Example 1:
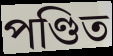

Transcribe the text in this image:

পণ্ডিত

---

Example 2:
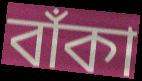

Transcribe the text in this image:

বাঁকা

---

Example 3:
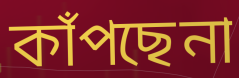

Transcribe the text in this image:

কাঁপছেনা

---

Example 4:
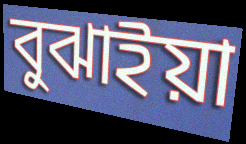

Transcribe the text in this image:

বুঝাইয়া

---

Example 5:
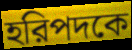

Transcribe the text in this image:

হরিপদকে